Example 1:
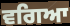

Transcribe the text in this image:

ਵਗਿਆ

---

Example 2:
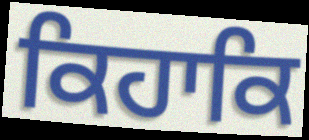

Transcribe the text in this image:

ਕਿਹਾਕਿ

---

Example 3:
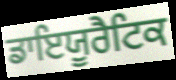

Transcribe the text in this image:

ਡਾਇਯੂਰੈਟਿਕ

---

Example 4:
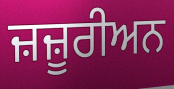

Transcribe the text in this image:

ਜ਼ਜ਼ੂਰੀਅਨ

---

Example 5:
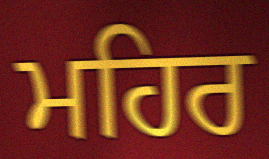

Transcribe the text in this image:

ਮਹਿਰ